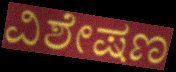
ವಿಶೇಷಣ